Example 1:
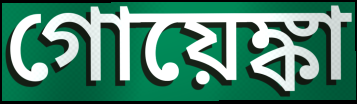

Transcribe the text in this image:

গোয়েঙ্কা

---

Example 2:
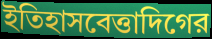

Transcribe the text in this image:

ইতিহাসবেত্তাদিগের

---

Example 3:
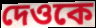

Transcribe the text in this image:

দেওকে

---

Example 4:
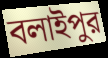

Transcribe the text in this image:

বলাইপুর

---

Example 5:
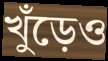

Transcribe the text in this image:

খুঁড়েও